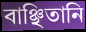
বাঞ্ছিতানি